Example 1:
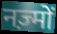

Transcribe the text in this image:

नज़्मों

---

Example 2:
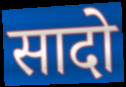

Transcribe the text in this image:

सादो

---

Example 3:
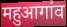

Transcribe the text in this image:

महुआगांव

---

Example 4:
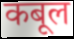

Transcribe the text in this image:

कबूल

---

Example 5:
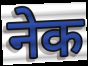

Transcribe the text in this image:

नेक